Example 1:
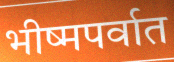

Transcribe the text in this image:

भीष्मपर्वात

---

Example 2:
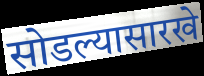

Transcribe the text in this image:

सोडल्यासारखे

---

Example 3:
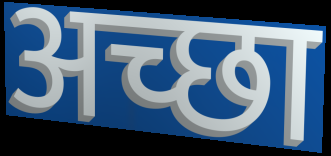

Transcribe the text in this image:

अच्छा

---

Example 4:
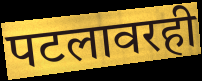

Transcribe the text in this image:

पटलावरही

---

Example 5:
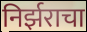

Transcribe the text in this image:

निर्झराचा